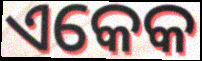
ଏକେକ